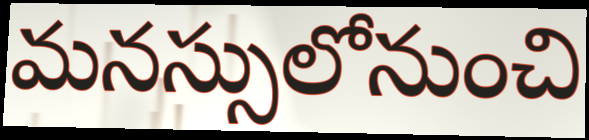
మనస్సులోనుంచి